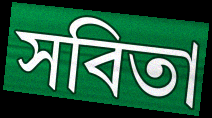
সবিতা